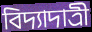
বিদ্যাদাত্রী